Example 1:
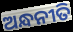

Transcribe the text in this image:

ଅନ୍ଧନୀତି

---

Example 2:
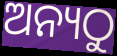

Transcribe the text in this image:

ଅନ୍ୟଠୁ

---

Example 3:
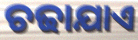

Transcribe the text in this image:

ଚଢାଯାଏ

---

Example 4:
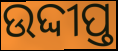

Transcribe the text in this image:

ଉଦ୍ଦୀପ୍ତ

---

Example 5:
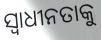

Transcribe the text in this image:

ସ୍ୱାଧୀନତାକୁ